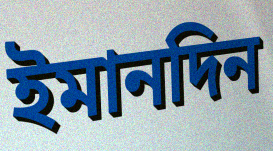
ইমানদিন